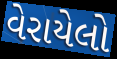
વેરાયેલો